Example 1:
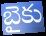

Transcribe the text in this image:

బైకు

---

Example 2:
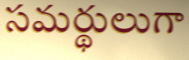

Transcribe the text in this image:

సమర్థులుగా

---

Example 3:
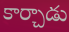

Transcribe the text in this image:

కార్చాడు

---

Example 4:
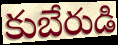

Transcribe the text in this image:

కుబేరుడి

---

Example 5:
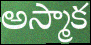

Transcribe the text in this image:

అస్మాక